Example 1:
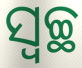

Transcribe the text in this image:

ସ୍ଵଚ୍ଛ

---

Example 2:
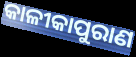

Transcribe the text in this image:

କାଳୀକାପୁରାଣ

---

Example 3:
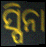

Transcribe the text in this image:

ସ୍ପିନା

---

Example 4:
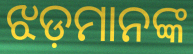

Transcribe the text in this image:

ଝଡ଼ମାନଙ୍କ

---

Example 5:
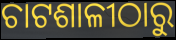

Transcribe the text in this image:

ଚାଟଶାଳୀଠାରୁ